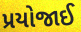
પ્રયોજાઈ